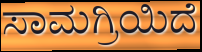
ಸಾಮಗ್ರಿಯಿದೆ